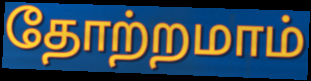
தோற்றமாம்